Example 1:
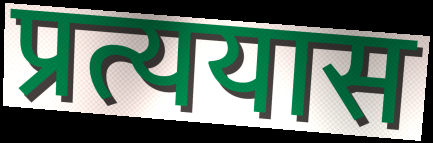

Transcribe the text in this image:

प्रत्ययास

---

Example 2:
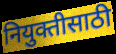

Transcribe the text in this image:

नियुक्तीसाठी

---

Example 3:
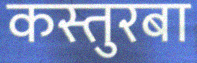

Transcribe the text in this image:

कस्तुरबा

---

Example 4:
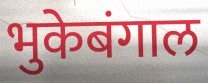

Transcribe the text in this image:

भुकेबंगाल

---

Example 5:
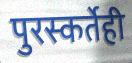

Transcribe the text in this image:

पुरस्कर्तेही